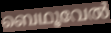
ബെഥൂവേൽ